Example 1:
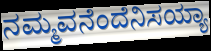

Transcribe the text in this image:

ನಮ್ಮವನೆಂದೆನಿಸಯ್ಯಾ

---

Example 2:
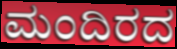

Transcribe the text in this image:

ಮಂದಿರದ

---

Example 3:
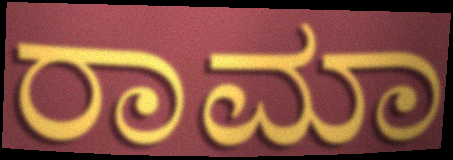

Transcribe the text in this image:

ರಾಮಾ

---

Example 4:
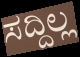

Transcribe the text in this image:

ಸದ್ದಿಲ್ಲ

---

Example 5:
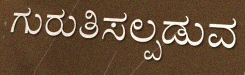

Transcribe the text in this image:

ಗುರುತಿಸಲ್ಪಡುವ